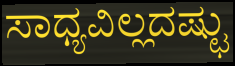
ಸಾಧ್ಯವಿಲ್ಲದಷ್ಟು